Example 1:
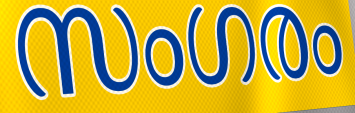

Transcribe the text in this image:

സംഗരം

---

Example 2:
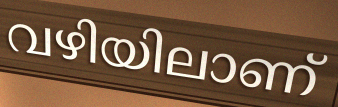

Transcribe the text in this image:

വഴിയിലാണ്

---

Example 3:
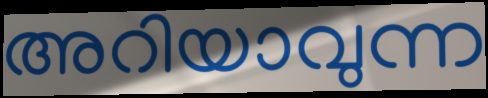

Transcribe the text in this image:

അറിയാവുന്ന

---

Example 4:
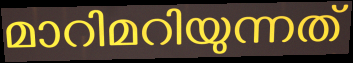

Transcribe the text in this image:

മാറിമറിയുന്നത്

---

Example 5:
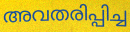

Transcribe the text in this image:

അവതരിപ്പിച്ച